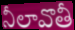
నీలావొతీ